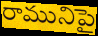
రామునిపై